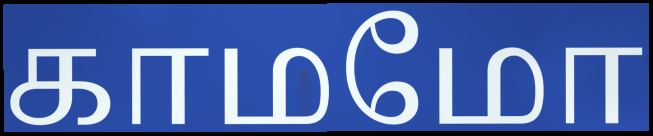
காமமோ